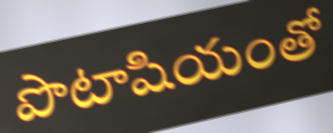
పొటాషియంతో